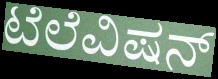
ಟೆಲೆವಿಷನ್